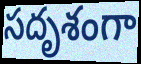
సదృశంగా